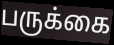
பருக்கை